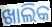
ଖାଲିକ